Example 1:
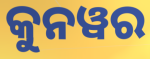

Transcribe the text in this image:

କୁନୱର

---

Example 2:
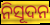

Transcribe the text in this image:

ନିସୂଦନ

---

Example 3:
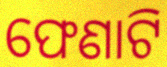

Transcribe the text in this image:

ଫେଣାଟି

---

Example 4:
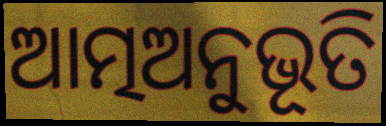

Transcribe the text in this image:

ଆତ୍ମଅନୁଭୂତି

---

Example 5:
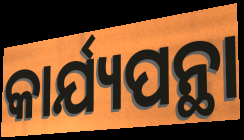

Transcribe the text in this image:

କାର୍ଯ୍ୟପନ୍ଥା